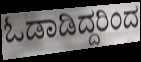
ಓಡಾಡಿದ್ದರಿಂದ